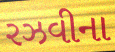
રઝવીના